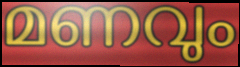
മണവും